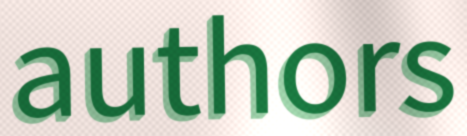
authors